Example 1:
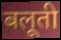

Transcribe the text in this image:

बलूती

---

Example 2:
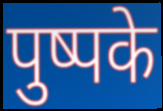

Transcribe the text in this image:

पुष्पके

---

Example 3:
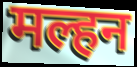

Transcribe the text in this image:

मल्हन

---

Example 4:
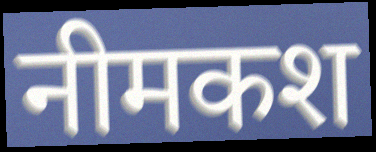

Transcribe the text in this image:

नीमकश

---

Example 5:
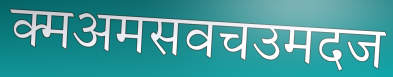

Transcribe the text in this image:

क्मअमसवचउमदज